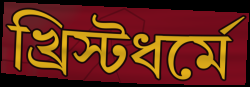
খ্রিস্টধর্মে